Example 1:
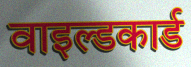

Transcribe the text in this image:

वाइल्डकार्ड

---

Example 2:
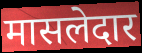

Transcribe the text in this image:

मासलेदार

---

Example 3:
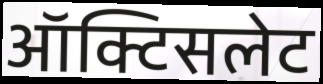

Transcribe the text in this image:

ऑक्टिसलेट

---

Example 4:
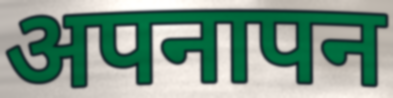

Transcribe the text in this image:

अपनापन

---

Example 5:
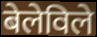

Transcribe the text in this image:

बेलेविले